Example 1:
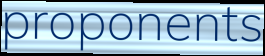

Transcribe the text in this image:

proponents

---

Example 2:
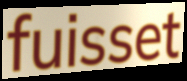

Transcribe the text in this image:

fuisset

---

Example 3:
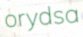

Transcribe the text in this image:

orydsa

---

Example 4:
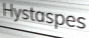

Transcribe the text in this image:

Hystaspes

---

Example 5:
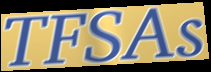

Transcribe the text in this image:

TFSAs